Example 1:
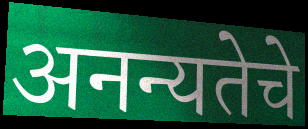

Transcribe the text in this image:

अनन्यतेचे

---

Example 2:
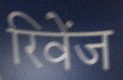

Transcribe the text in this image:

रिवेंज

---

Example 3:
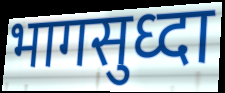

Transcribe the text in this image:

भागसुध्दा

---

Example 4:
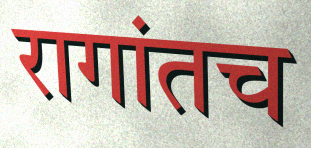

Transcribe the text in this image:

रागांतच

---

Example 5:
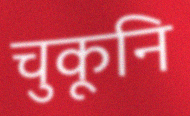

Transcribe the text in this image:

चुकूनि